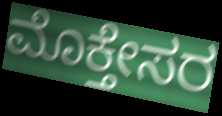
ಮೊಕ್ತೇಸರ